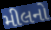
મીલનો